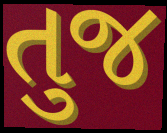
તુજ